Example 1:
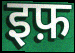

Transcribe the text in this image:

इफ़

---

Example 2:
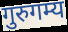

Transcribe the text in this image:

गुरुगम्य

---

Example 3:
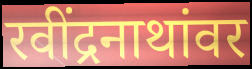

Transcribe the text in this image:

रवींद्रनाथांवर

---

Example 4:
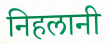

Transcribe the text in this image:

निहलानी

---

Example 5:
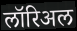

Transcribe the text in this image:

लॉरिअल